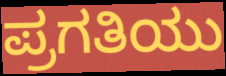
ಪ್ರಗತಿಯು